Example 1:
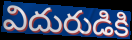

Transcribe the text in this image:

విదురుడికి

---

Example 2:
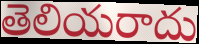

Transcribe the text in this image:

తెలియరాదు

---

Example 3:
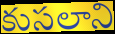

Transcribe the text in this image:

కుసలాని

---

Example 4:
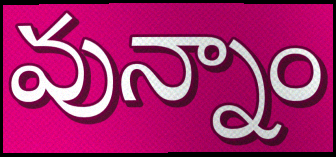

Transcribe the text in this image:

వున్నాం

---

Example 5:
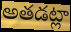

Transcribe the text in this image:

అతడట్లా